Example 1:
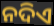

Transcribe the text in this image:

ନଦିଏ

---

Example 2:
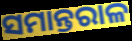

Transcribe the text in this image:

ସମାନ୍ତରାଳ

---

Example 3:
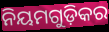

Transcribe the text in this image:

ନିୟମଗୁଡ଼ିକର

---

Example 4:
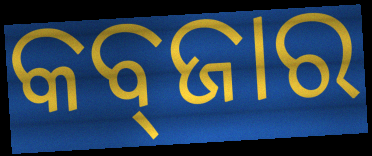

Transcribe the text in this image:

କବ୍‌ଜାର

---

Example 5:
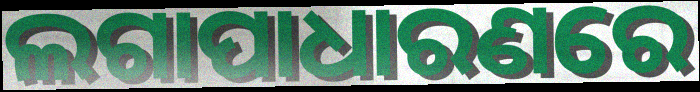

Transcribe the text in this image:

ଲଗାପାଧାରଣରେ